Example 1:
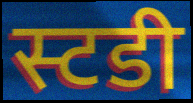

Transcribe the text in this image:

स्टडी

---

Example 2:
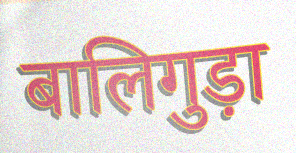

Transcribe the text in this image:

बालिगुड़ा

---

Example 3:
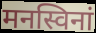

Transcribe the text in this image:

मनस्विनां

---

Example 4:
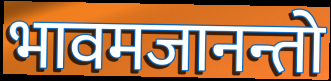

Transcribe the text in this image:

भावमजानन्तो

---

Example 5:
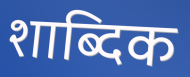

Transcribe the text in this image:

शाब्दिक